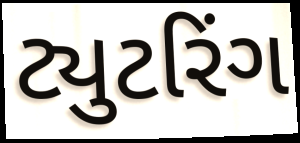
ટ્યુટરિંગ